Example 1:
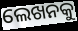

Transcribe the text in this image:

ଲେଖନକୁ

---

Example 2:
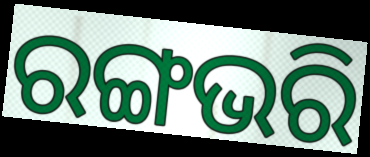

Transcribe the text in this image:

ରଙ୍ଗଭରି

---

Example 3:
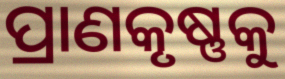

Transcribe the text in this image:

ପ୍ରାଣକୃଷ୍ଣକୁ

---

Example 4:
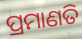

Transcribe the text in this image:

ପ୍ରମାଣତି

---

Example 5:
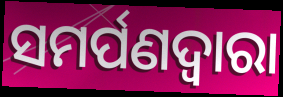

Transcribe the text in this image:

ସମର୍ପଣଦ୍ୱାରା